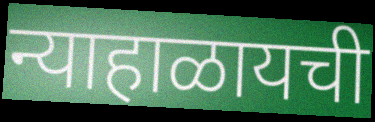
न्याहाळायची